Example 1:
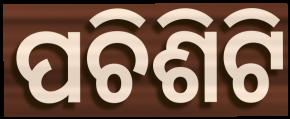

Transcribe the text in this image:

ପଚିଶିଟି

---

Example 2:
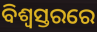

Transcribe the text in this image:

ବିଶ୍ୱସ୍ତରରେ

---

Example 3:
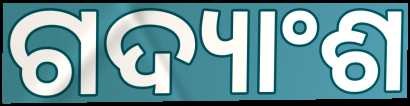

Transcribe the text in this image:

ଗଦ୍ୟାଂଶ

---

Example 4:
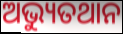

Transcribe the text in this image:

ଅଭ୍ୟୁତଥାନ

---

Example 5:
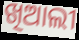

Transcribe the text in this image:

ଖିଆଲୀ